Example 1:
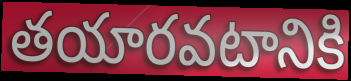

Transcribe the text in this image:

తయారవటానికి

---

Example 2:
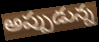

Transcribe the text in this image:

అప్పుడున్న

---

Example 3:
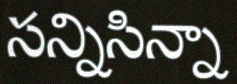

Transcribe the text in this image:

సన్నిసిన్నా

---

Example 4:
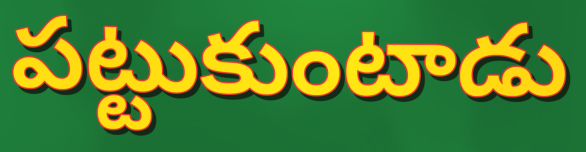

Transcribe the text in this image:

పట్టుకుంటాడు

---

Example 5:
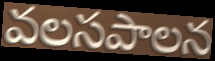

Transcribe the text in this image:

వలసపాలన